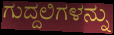
ಗುದ್ದಲಿಗಳನ್ನು